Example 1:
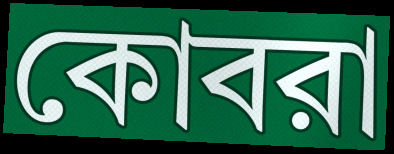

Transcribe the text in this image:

কোবরা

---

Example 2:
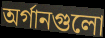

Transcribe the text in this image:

অর্গানগুলো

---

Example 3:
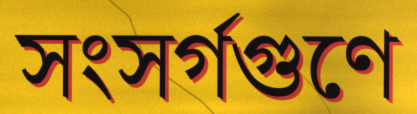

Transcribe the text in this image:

সংসর্গগুণে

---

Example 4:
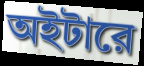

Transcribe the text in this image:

অইটারে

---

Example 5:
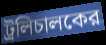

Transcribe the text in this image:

ট্রলিচালকের